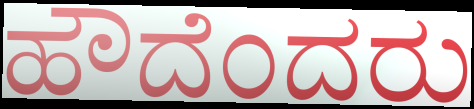
ಹೌದೆಂದರು